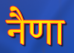
नैणा